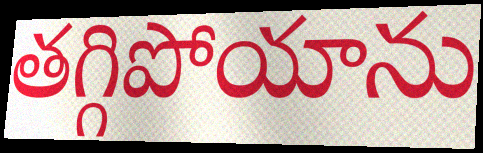
తగ్గిపోయాను